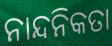
ନାନ୍ଦନିକତା